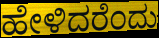
ಹೇಳಿದರೆಂದು